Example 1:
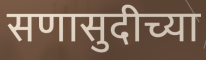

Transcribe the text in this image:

सणासुदीच्या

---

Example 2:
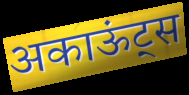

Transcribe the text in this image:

अकाऊंट्स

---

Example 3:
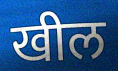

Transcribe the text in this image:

खील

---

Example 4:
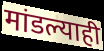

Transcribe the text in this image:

मांडल्याही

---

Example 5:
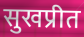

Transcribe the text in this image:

सुखप्रीत